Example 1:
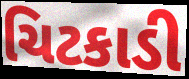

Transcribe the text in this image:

ચિટકાડી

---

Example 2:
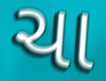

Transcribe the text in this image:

ચા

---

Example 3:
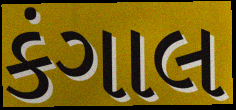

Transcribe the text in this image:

કંગાલ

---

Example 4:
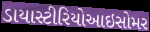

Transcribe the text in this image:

ડાયાસ્ટીરિયોઆઇસોમર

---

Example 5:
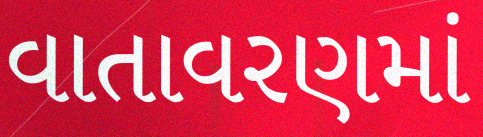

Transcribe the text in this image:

વાતાવરણમાં